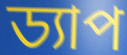
ড্যাপ